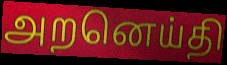
அறனெய்தி